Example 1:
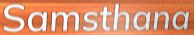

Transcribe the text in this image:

Samsthana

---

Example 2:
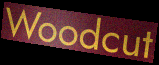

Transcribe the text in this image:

Woodcut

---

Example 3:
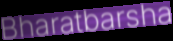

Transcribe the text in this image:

Bharatbarsha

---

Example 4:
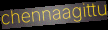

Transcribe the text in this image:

chennaagittu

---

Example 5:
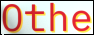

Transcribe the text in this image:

Othe